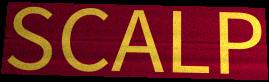
SCALP